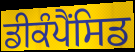
ਡੀਕੰਪੈਂਸਿਡ